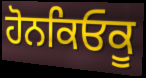
ਹੋਨਕਿਓਕੂ